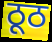
ठूठ